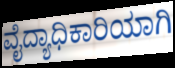
ವೈದ್ಯಾಧಿಕಾರಿಯಾಗಿ